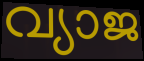
വ്യാജ